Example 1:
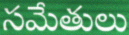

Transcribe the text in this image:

సమేతులు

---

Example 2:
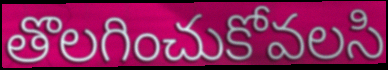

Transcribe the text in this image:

తొలగించుకోవలసి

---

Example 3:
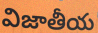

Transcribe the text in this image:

విజాతీయ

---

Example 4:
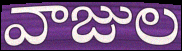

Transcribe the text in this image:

వాజుల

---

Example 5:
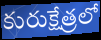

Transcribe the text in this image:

కురుక్షేత్రలో